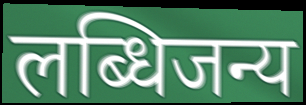
लब्धिजन्य